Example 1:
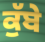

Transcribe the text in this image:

ਕੁੱਬੇ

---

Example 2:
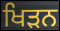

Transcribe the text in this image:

ਖਿੜਨ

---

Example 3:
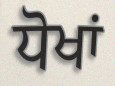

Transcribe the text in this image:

ਧੋਖਾਂ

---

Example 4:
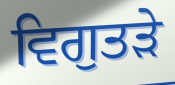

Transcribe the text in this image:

ਵਿਗੁਤੜੇ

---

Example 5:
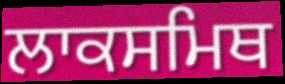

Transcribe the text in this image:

ਲਾਕਸਮਿਥ